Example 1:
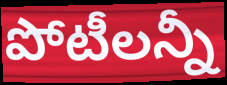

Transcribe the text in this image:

పోటీలన్నీ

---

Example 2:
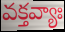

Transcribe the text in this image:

వక్తవ్యాః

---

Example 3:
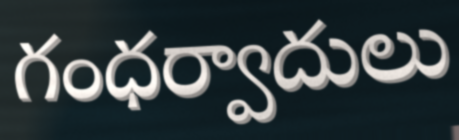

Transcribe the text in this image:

గంధర్వాదులు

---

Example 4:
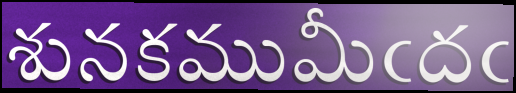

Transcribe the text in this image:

శునకముమీఁదఁ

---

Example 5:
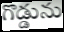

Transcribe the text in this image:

గొడ్డును